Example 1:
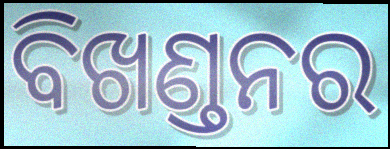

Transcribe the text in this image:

ବିଖଣ୍ଡନର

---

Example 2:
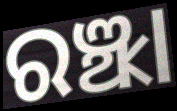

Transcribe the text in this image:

ରଞ୍ଝା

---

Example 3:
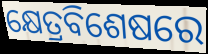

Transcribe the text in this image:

କ୍ଷେତ୍ରବିଶେଷରେ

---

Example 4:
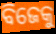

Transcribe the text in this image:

ବିଜେକୁ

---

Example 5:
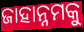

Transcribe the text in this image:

ଜାହାନ୍ନମକୁ